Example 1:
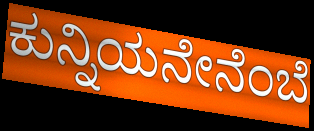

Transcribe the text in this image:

ಕುನ್ನಿಯನೇನೆಂಬೆ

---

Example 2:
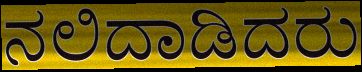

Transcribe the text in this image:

ನಲಿದಾಡಿದರು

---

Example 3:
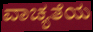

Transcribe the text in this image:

ವಾಚ್ಯತೆಯ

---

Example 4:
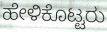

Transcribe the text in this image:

ಹೇಳಿಕೊಟ್ಟರು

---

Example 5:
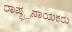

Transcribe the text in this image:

ರಾಷ್ಟ್ರನಾಯಕರು